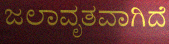
ಜಲಾವೃತವಾಗಿದೆ